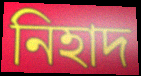
নিহাদ